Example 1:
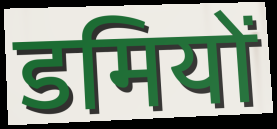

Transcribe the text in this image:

डमियों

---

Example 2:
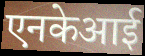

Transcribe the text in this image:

एनकेआई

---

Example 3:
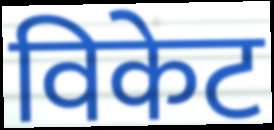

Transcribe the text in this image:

विकेट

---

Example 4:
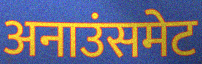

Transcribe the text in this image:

अनाउंसमेट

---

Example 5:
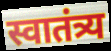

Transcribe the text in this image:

स्वातंत्र्य